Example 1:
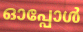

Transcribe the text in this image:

ഓപ്പോൾ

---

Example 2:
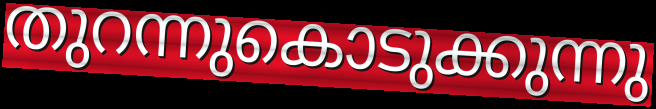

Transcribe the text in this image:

തുറന്നുകൊടുക്കുന്നു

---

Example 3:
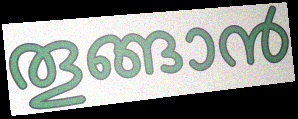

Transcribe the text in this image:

തൂങ്ങാൻ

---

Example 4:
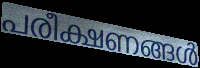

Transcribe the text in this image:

പരീക്ഷണങ്ങൾ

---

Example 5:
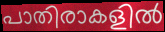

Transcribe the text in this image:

പാതിരാകളിൽ